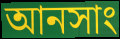
আনসাং